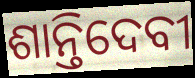
ଶାନ୍ତିଦେବୀ